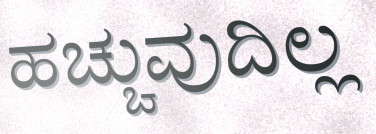
ಹಚ್ಚುವುದಿಲ್ಲ